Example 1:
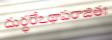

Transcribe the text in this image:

దుర్ధరోఽథాపరాజితః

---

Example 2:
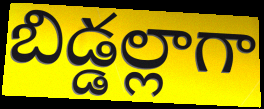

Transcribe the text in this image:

బిడ్డల్లాగా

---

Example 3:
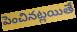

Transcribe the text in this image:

పెంచినట్లయితే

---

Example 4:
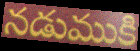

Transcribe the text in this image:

నడుముకి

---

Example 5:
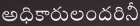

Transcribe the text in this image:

అధికారులందరినీ